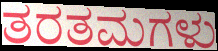
ತರತಮಗಳು